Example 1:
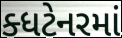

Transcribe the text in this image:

ક્ધટેનરમાં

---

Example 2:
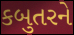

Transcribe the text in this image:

કબુતરને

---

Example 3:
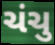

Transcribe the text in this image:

ચંચુ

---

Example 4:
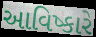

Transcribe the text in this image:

આવિષ્કારે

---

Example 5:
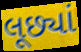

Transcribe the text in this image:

લૂછ્યાં